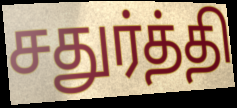
சதுர்த்தி